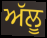
ਅੱਲੂ